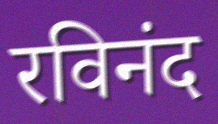
रविनंद